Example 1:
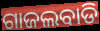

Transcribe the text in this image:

ଗାଜଲବାଡି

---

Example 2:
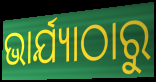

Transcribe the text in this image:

ଭାର୍ଯ୍ୟାଠାରୁ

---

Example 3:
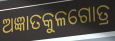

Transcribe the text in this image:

ଅଜ୍ଞାତକୁଳଗୋତ୍ର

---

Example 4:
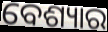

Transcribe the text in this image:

ବେଶ୍ୟାର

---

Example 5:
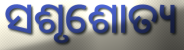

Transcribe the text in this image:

ସଶୃଶୋତ୍ୟ